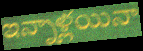
ఇన్నాళ్లయినా